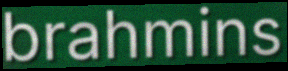
brahmins